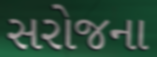
સરોજના